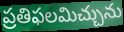
ప్రతిఫలమిచ్చును